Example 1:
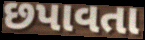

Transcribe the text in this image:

છપાવતા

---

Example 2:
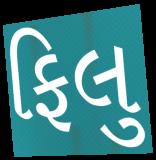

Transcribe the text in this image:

ફિલુ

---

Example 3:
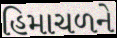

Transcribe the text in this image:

હિમાચળને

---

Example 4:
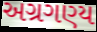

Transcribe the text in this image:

અગ્રગણ્ય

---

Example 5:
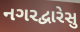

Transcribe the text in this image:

નગરદ્વારેસુ